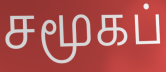
சமூகப்